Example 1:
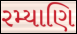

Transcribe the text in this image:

રમ્યાણિ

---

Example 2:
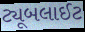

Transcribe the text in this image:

ટ્યૂબલાઈટ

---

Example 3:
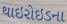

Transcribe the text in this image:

થાઇરોઇડના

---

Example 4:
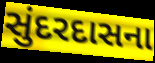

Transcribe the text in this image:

સુંદરદાસના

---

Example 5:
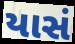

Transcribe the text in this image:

યાસં